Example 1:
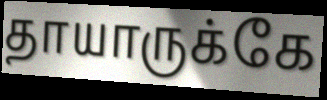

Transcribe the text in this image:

தாயாருக்கே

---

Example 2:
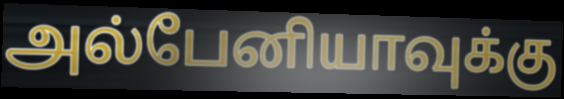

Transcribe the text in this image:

அல்பேனியாவுக்கு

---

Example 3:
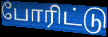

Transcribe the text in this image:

போரிட்டு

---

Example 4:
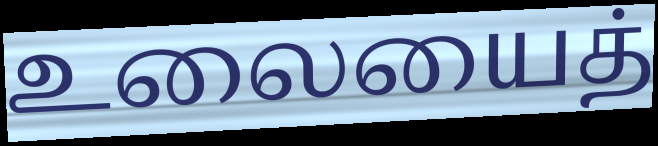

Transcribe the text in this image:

உலையைத்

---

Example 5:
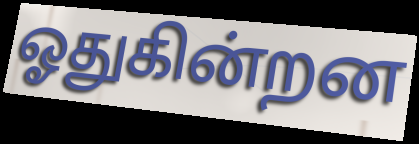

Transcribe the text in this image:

ஓதுகின்றன